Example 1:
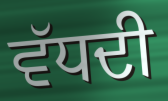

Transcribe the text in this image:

ਵੱਧਦੀ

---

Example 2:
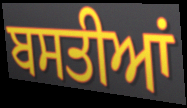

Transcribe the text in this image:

ਬਸਤੀਆਂ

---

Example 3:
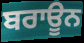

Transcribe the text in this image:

ਬਰਾਊਨ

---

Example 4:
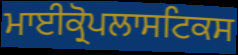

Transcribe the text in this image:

ਮਾਈਕ੍ਰੋਪਲਾਸਟਿਕਸ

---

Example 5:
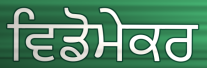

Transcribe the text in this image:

ਵਿਡੋਮੇਕਰ